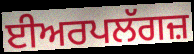
ਈਅਰਪਲੱਗਜ਼